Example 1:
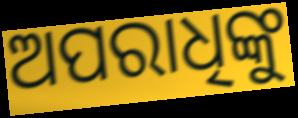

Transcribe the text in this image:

ଅପରାଧିଙ୍କୁ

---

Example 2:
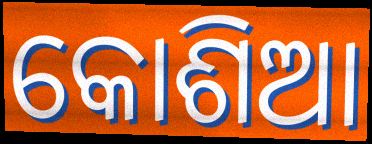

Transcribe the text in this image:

କୋଶିଆ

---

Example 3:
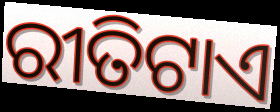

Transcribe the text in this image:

ରୀତିଟାଏ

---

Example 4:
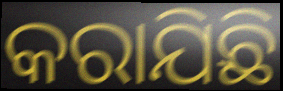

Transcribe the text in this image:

କରାଯିଛି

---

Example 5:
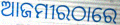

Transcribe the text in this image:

ଆଜମୀରଠାରେ